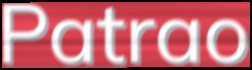
Patrao